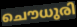
ചൌധുരി